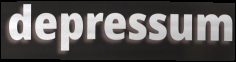
depressum